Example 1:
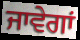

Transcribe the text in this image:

ਜਾਵੇਗਾਂ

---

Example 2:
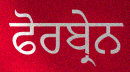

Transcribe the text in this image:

ਫੋਰਬ੍ਰੇਨ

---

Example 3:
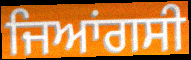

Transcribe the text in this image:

ਜਿਆਂਗਸੀ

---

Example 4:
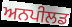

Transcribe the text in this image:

ਅਨਪੀਲਡ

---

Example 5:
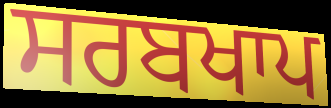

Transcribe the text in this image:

ਸਰਬਖਾਪ